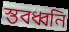
স্তবধ্বনি